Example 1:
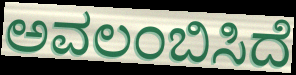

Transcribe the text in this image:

ಅವಲಂಬಿಸಿದೆ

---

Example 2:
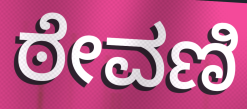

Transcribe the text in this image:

ಠೇವಣಿ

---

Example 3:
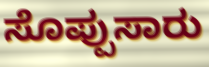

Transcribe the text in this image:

ಸೊಪ್ಪುಸಾರು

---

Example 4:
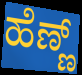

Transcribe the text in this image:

ಹೆಣ್ಣ್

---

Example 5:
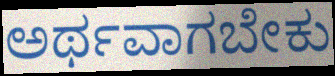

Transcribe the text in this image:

ಅರ್ಥವಾಗಬೇಕು